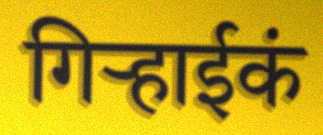
गिऱ्हाईकं